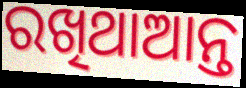
ରଖିଥାଆନ୍ତ